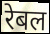
रेबल